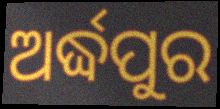
ଅର୍ଦ୍ଧପୁର